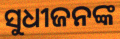
ସୁଧୀଜନଙ୍କ